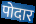
पोदार